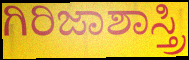
ಗಿರಿಜಾಶಾಸ್ತ್ರಿ